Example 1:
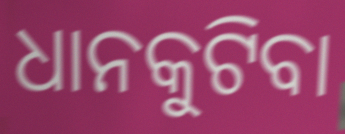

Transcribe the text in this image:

ଧାନକୁଟିବା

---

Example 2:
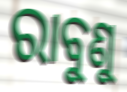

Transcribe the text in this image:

ରାବୁଣୁ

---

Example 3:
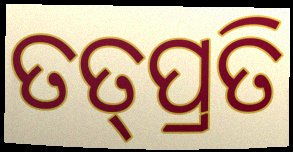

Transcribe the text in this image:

ତତ୍‌ପ୍ରତି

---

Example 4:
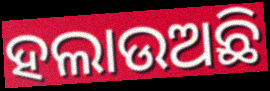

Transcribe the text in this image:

ହଲାଉଅଛି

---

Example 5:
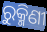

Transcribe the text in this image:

ରୁକ୍ମିଣୀ